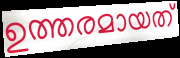
ഉത്തരമായത്